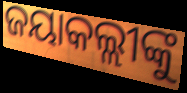
ଜୟାକଲ୍ଲୀଙ୍କୁ